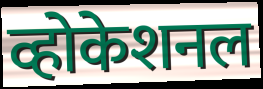
व्होकेशनल